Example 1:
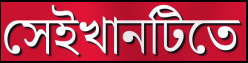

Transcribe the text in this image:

সেইখানটিতে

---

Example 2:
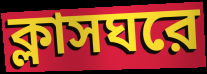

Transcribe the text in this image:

ক্লাসঘরে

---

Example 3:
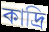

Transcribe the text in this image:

কাদ্রি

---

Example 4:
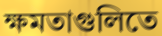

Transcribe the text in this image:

ক্ষমতাগুলিতে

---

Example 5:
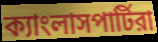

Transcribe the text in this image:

ক্যাংলাসপার্টিরা